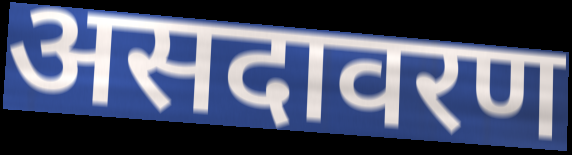
असदावरण